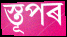
স্তূপৰ